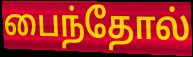
பைந்தோல்